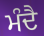
ਮੰਦੈ